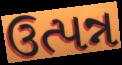
ઉત્પન્ન